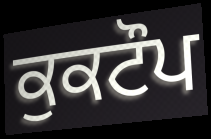
ਕੁਕਟੌਪ